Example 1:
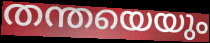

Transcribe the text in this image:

തന്തയെയും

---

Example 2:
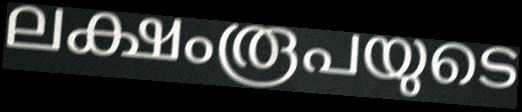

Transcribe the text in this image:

ലക്ഷംരൂപയുടെ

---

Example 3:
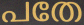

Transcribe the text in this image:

പതേ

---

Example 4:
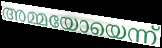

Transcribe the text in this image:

അമ്മയോയെന്ന്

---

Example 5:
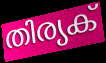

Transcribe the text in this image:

തിര്യക്